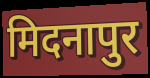
मिदनापुर